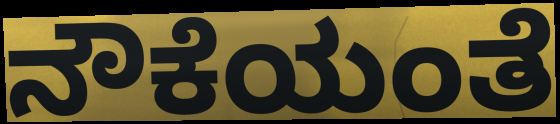
ನೌಕೆಯಂತೆ